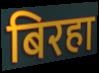
बिरहा